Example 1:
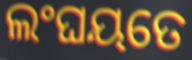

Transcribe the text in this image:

ଲଂଘୟତେ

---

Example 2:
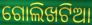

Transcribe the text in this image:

ଗୋଲିଖଟିଆ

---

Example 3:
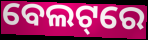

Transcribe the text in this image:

ବେଲଟ୍‌ରେ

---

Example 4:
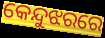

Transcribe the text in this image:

କେନ୍ଦୁଝରରେ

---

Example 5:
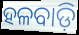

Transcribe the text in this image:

ହଳବାଡ଼ି